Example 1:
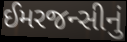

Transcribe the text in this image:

ઈમરજન્સીનું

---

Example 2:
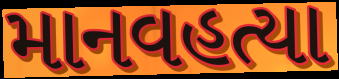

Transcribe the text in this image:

માનવહત્યા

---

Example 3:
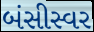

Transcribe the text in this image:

બંસીસ્વર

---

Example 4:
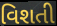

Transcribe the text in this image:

વિશતી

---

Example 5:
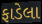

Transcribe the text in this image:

ફાડેલા